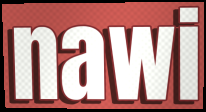
nawi